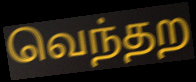
வெந்தற